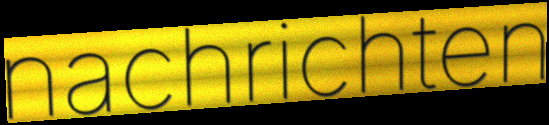
nachrichten